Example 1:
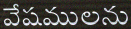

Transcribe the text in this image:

వేషములను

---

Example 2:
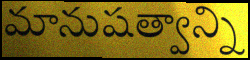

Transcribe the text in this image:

మానుషత్వాన్ని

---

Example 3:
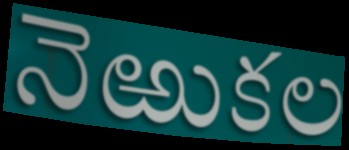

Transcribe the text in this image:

నెఱుకల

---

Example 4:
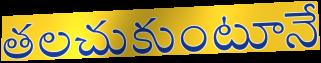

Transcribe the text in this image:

తలచుకుంటూనే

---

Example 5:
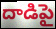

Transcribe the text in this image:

దాడిపై